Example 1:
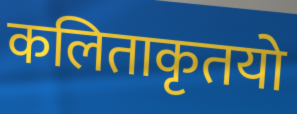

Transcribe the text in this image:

कलिताकृतयो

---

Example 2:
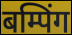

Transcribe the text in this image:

बम्पिंग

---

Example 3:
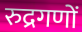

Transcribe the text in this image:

रुद्रगणों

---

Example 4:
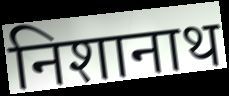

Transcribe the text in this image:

निशानाथ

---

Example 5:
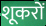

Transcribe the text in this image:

शूकरों